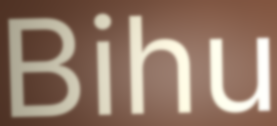
Bihu